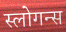
स्लोगन्स